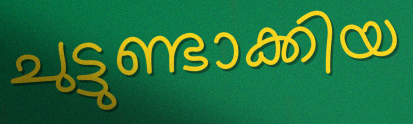
ചുട്ടുണ്ടാക്കിയ